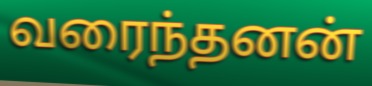
வரைந்தனன்